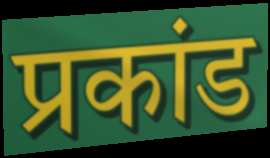
प्रकांड